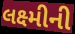
લક્ષ્મીની